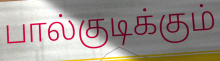
பால்குடிக்கும்